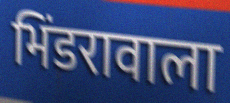
भिंडरावाला